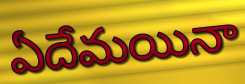
ఏదేమయినా